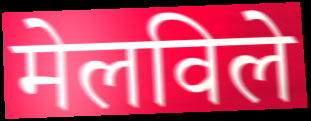
मेलविले